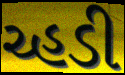
ચ્હડી